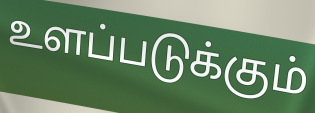
உளப்படுக்கும்